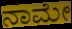
ನಾಮೇ